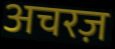
अचरज़